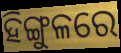
ହିଙ୍ଗୁଳରେ